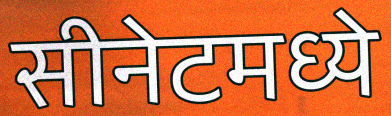
सीनेटमध्ये